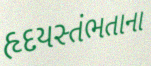
હૃદયસ્તંભતાના